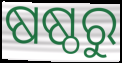
ଷଷ୍ଠରୁ